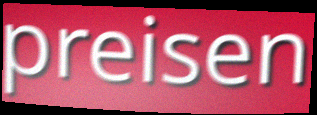
preisen